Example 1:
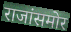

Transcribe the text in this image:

राजांसमोर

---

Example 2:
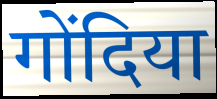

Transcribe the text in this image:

गोंदिया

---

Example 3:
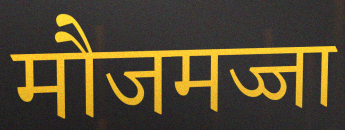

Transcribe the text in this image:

मौजमज्जा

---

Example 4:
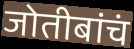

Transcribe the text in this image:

जोतीबांचं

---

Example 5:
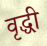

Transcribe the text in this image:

वृद्धी